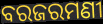
ବରଜରମଣୀ